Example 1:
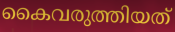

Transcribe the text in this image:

കൈവരുത്തിയത്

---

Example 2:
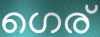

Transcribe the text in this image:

ഗെര്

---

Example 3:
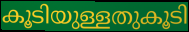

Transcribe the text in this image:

കൂടിയുള്ളതുകൂടി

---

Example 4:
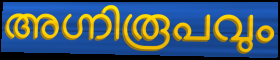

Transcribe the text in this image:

അഗ്നിരൂപവും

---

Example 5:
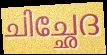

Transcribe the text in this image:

ചിച്ഛേദ